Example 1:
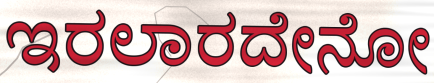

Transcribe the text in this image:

ಇರಲಾರದೇನೋ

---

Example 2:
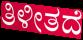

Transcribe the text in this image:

ತಿಳೀತದೆ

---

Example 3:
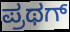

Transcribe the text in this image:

ಪ್ರಥಗ್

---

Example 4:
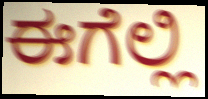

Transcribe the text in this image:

ಈಗೆಲ್ಲಿ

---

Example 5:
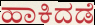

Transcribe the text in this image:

ಹಾಕಿದಡೆ